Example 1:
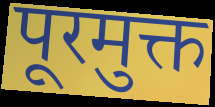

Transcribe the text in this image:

पूरमुक्त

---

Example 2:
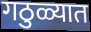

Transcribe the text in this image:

गठुळ्यात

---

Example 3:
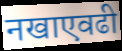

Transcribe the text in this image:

नखाएवढी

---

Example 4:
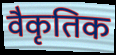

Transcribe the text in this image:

वैकृतिक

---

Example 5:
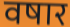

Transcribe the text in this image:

वषार